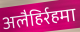
अलैहिर्रहमा